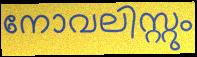
നോവലിസ്റ്റും